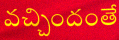
వచ్చిందంతే